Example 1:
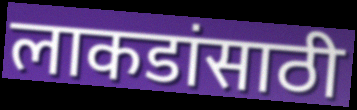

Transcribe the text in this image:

लाकडांसाठी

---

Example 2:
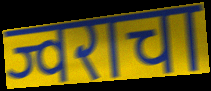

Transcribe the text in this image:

ज्वराचा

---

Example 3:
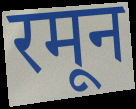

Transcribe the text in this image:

रमून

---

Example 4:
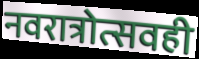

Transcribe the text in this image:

नवरात्रोत्सवही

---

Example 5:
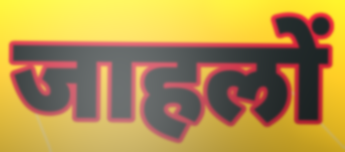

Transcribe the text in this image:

जाहलों